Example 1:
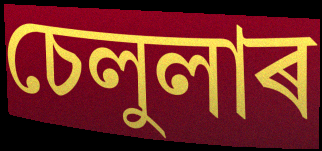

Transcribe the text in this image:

চেলুলাৰ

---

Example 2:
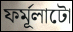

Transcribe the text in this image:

ফৰ্মূলাটো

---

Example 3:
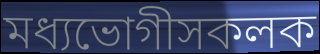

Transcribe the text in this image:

মধ্যভোগীসকলক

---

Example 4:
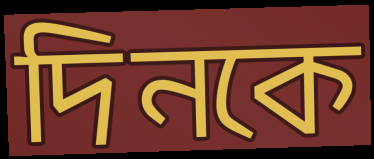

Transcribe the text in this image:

দিনকে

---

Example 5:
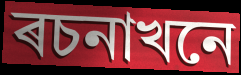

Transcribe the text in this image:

ৰচনাখনে